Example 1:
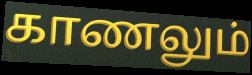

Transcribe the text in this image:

காணலும்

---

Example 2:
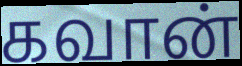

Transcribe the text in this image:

கவான்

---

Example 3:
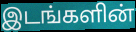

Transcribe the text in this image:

இடங்களின்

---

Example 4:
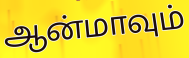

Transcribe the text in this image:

ஆன்மாவும்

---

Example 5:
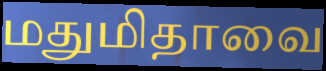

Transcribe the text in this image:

மதுமிதாவை